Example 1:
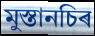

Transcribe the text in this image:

মুস্তানচিৰ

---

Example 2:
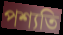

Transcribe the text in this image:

পশ্যতি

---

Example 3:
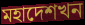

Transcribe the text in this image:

মহাদেশখন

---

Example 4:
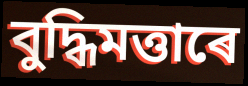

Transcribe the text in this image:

বুদ্ধিমত্তাৰে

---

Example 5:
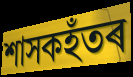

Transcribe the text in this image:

শাসকহঁতৰ